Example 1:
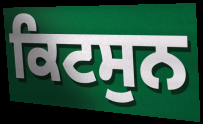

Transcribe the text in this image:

ਕਿਟਸੁਨ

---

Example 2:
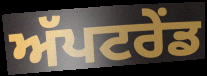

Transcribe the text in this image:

ਅੱਪਟਰੇਂਡ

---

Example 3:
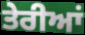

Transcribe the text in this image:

ਤੇਰੀਆਂ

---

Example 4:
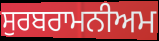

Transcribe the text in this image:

ਸੁਰਬਰਾਮਨੀਅਮ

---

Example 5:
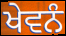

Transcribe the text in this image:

ਖੇਵਨੰ